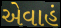
એવાહં